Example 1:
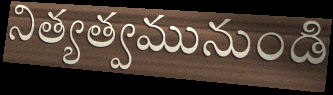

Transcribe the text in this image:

నిత్యత్వమునుండి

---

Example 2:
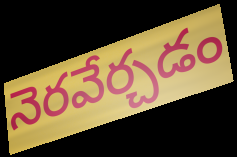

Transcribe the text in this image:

నెరవేర్చడం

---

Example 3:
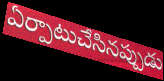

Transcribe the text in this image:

ఏర్పాటుచేసినప్పుడు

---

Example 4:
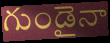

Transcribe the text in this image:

గుండైనా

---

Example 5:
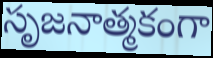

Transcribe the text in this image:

సృజనాత్మకంగా